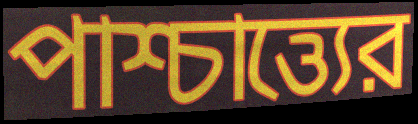
পাশ্চাত্ত্যের